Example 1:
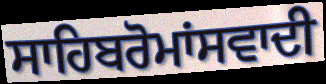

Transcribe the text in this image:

ਸਾਹਿਬਰੋਮਾਂਸਵਾਦੀ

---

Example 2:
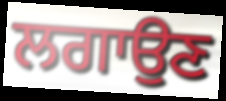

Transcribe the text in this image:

ਲਗਾਉਣ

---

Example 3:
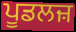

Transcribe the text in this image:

ਪੂਡਲਜ਼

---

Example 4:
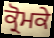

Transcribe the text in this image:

ਕ੍ਰੋਮਕੇ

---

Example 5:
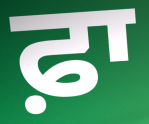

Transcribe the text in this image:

ਫ਼ਾ